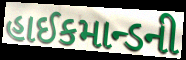
હાઈકમાન્ડની